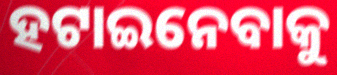
ହଟାଇନେବାକୁ